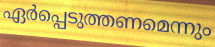
ഏർപ്പെടുത്തണമെന്നും